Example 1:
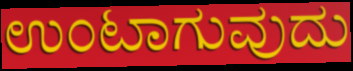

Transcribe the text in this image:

ಉಂಟಾಗುವುದು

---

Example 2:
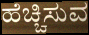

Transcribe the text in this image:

ಹೆಚ್ಚಿಸುವ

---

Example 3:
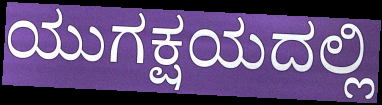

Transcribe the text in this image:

ಯುಗಕ್ಷಯದಲ್ಲಿ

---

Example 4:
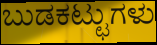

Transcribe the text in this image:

ಬುಡಕಟ್ಟುಗಳು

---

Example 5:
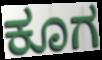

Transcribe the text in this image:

ಕೂಗ